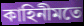
কাহিনীমতে